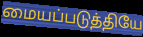
மையப்படுத்தியே